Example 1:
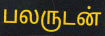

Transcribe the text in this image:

பலருடன்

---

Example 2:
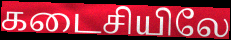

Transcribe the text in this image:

கடைசியிலே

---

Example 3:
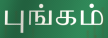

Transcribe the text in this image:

புங்கம்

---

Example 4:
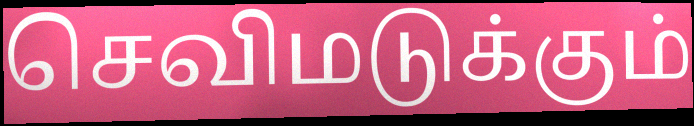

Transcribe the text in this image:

செவிமடுக்கும்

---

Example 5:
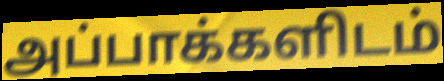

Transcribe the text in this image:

அப்பாக்களிடம்